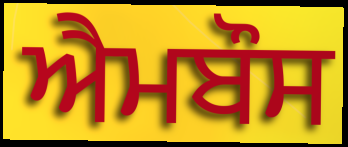
ਐਮਬੌਸ